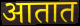
आतात